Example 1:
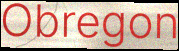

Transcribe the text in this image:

Obregon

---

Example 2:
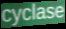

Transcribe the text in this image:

cyclase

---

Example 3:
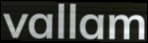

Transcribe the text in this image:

vallam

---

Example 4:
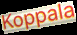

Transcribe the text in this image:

Koppala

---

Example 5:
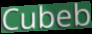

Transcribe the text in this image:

Cubeb